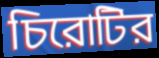
চিরোটির